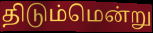
திடும்மென்று